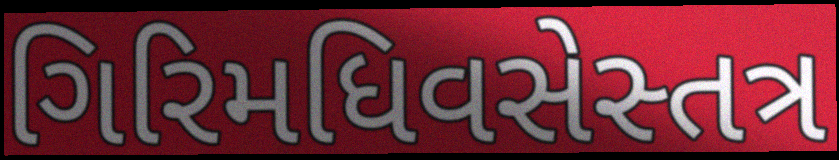
ગિરિમધિવસેસ્તત્ર